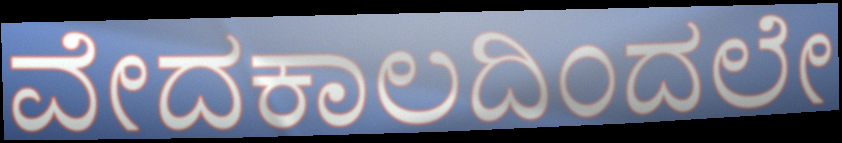
ವೇದಕಾಲದಿಂದಲೇ